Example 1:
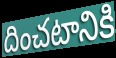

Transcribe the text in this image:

దించటానికి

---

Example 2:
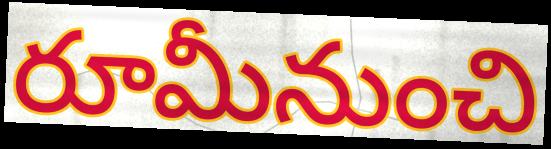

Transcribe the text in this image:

రూమీనుంచి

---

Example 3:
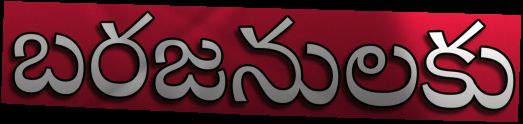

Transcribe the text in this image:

బరజనులకు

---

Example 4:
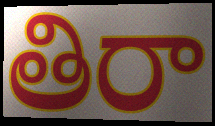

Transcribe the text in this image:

తిరా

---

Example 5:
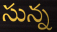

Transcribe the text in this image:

సున్న